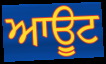
ਆਉੂਟ